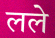
लले